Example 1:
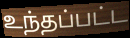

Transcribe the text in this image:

உந்தப்பட்ட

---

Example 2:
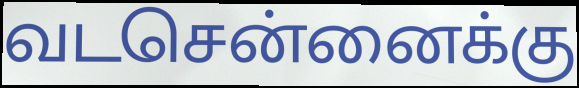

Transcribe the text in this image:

வடசென்னைக்கு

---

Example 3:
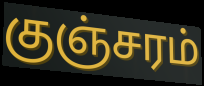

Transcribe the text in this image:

குஞ்சரம்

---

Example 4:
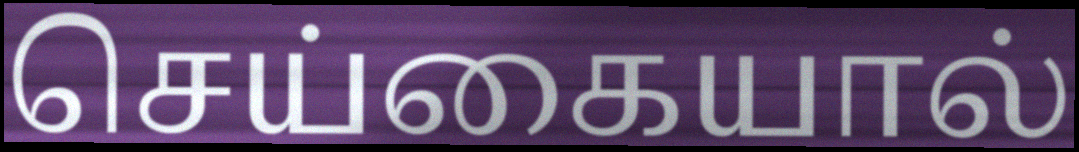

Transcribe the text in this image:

செய்கையால்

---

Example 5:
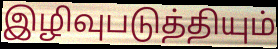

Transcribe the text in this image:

இழிவுபடுத்தியும்